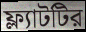
ফ্ল্যাটটির